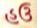
હઉ